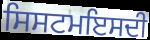
ਸਿਸਟਮਇਸਦੀ